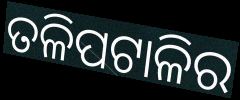
ତଳିପଟାଳିର